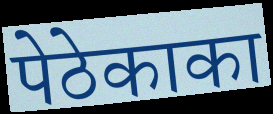
पेठेकाका